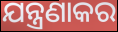
ଯନ୍ତ୍ରଣାକର